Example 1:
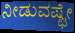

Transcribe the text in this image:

ನೀಡುವಷ್ಟೇ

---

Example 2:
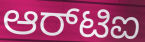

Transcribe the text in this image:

ಆರ್‌ಟಿಐ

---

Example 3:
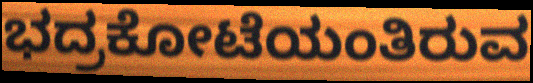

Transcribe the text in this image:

ಭದ್ರಕೋಟೆಯಂತಿರುವ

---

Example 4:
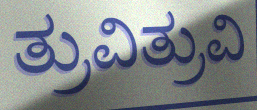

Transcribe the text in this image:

ತ್ರುವಿತ್ರುವಿ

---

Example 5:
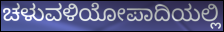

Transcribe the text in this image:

ಚಳುವಳಿಯೋಪಾದಿಯಲ್ಲಿ